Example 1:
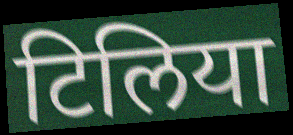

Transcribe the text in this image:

टिलिया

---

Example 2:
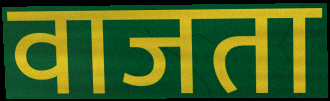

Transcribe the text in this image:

वाजता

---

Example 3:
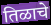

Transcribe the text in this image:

तिळाचे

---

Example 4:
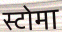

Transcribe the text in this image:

स्टोमा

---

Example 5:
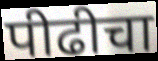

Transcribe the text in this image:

पीढीचा